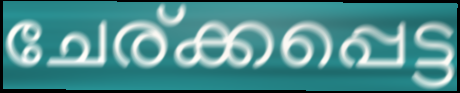
ചേര്ക്കപ്പെട്ട